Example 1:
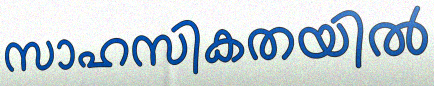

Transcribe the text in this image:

സാഹസികതയിൽ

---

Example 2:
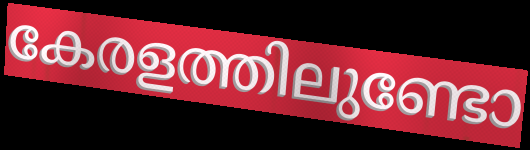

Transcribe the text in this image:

കേരളത്തിലുണ്ടോ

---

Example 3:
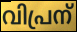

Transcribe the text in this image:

വിപ്രന്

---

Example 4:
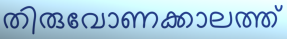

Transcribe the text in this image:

തിരുവോണക്കാലത്ത്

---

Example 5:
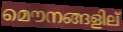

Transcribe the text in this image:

മൌനങ്ങളില്